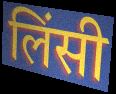
लिंसी